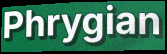
Phrygian